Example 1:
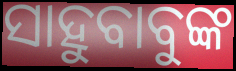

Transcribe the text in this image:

ସାହୁବାବୁଙ୍କ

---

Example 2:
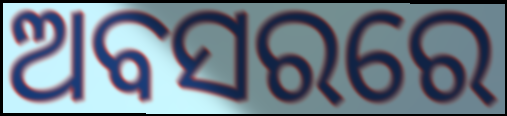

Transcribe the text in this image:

ଅବସରରେ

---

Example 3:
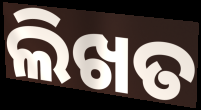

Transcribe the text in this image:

ଲିଖତ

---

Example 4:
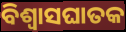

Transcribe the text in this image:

ବିଶ୍ୱାସଘାତକ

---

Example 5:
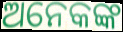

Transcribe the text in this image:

ଅନେକଙ୍କ